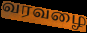
வரவழை